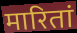
मारितां